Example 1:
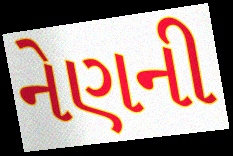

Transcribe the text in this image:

નેણની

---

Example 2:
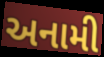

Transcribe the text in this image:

અનામી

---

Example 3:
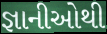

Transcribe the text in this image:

જ્ઞાનીઓથી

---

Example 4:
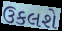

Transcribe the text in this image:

ઉકલશે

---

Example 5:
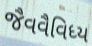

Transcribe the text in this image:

જૈવવૈવિધ્ય